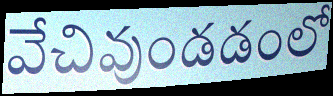
వేచివుండడంలో